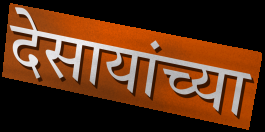
देसायांच्या